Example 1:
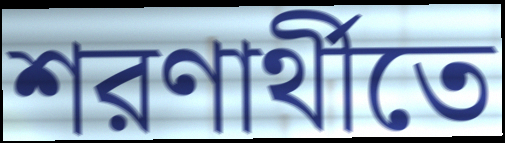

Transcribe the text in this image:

শরণার্থীতে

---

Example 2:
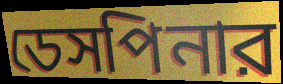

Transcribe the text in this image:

ডেসপিনার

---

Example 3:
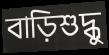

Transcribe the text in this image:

বাড়িশুদ্ধু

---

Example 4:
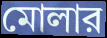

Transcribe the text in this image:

মোলার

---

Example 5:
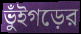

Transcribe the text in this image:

ভুঁইগড়ের